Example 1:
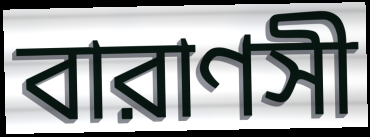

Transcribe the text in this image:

বারাণসী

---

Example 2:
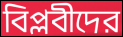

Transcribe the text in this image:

বিপ্লবীদের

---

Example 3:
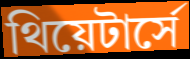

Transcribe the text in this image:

থিয়েটার্সে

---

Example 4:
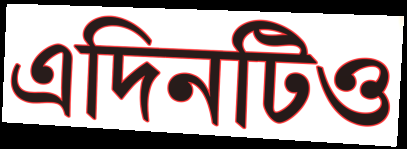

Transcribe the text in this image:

এদিনটিও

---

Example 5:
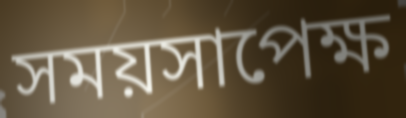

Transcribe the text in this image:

সময়সাপেক্ষ